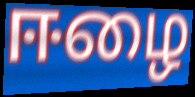
ஈழை